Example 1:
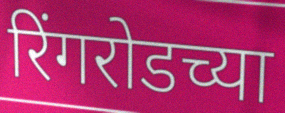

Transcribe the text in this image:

रिंगरोडच्या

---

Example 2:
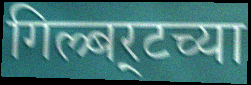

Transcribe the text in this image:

गिल्बर्टच्या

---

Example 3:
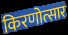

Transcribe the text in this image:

किरणोत्सार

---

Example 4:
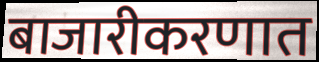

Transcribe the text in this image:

बाजारीकरणात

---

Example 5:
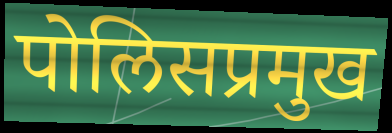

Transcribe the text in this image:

पोलिसप्रमुख